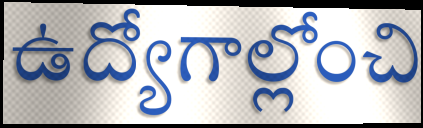
ఉద్యోగాల్లోంచి